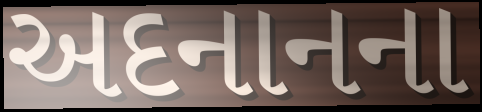
અદનાનના